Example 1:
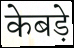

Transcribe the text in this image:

केबड़े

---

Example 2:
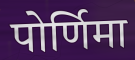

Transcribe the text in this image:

पोर्णिमा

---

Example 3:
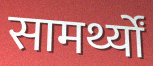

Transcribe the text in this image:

सामर्थ्यों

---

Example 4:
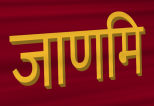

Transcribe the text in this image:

जाणमि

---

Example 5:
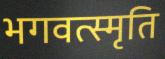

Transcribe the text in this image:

भगवत्स्मृति